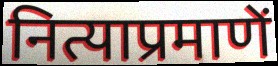
नित्याप्रमाणें